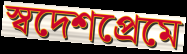
স্বদেশপ্রেমে